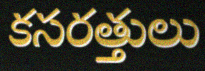
కసరత్తులు